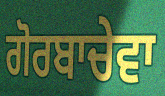
ਗੋਰਬਾਚੇਵਾ